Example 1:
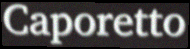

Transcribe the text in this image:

Caporetto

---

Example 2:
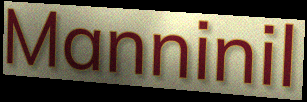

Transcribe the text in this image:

Manninil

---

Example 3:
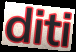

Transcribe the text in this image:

diti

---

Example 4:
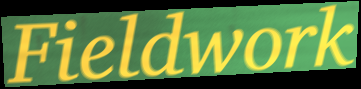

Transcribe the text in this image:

Fieldwork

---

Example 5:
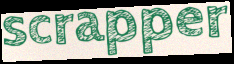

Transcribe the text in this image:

scrapper